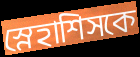
স্নেহাশিসকে